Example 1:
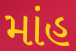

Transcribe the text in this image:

માંહ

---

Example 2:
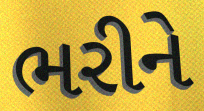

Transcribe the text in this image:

ભરીને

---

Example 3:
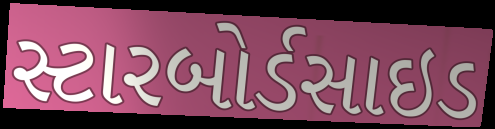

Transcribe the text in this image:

સ્ટારબોર્ડસાઇડ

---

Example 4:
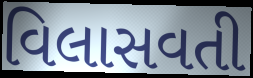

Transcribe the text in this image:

વિલાસવતી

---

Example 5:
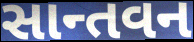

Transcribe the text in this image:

સાન્તવન